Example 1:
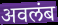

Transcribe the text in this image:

अवलंब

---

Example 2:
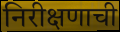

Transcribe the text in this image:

निरीक्षणाची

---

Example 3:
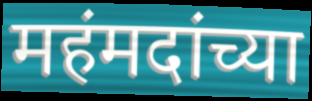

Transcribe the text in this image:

महंमदांच्या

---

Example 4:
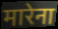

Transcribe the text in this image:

मारेना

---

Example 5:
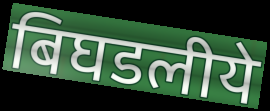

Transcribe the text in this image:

बिघडलीये